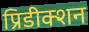
प्रिडीक्शन